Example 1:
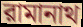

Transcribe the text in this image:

রামানাথ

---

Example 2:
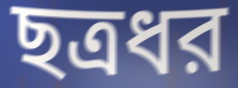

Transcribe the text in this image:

ছত্রধর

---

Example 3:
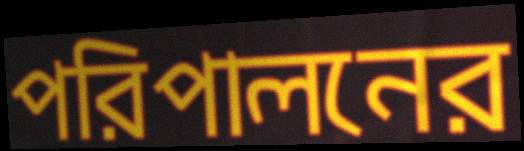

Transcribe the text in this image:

পরিপালনের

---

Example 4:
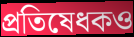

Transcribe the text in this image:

প্রতিষেধকও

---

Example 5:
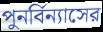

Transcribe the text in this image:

পুনর্বিন্যাসের